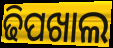
ଢିପଖାଲ